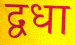
द्वधा